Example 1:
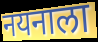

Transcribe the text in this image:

नयनाला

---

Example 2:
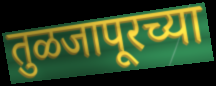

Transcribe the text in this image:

तुळजापूरच्या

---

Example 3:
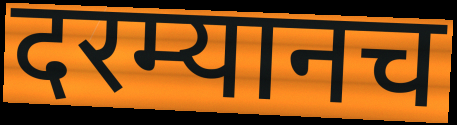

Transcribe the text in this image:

दरम्यानच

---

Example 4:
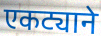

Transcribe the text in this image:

एकट्याने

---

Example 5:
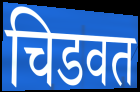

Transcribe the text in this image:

चिडवत